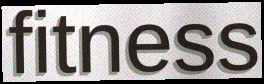
fitness